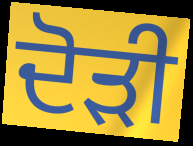
ਦੋੜੀ